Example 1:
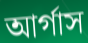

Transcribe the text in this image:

আর্গাস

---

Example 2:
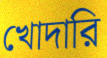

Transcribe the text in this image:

খোদারি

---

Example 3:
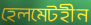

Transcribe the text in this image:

হেলমেটহীন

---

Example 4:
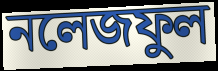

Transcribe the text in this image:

নলেজফুল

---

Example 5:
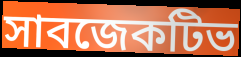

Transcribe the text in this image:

সাবজেকটিভ